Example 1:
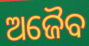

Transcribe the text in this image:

ଅଜୈବ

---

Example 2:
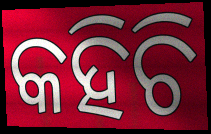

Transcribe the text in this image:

କହିଚି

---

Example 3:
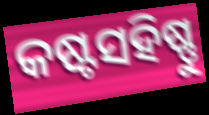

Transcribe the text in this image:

କଷ୍ଟସହିଷ୍ଣୁ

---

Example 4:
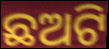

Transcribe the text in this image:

ଛଅଟି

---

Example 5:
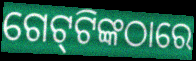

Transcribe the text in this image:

ଗେଟ୍‌ଟିଙ୍କଠାରେ